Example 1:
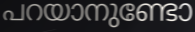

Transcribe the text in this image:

പറയാനുണ്ടോ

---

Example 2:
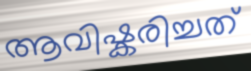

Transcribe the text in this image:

ആവിഷ്കരിച്ചത്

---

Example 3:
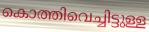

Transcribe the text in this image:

കൊത്തിവെച്ചിട്ടുള്ള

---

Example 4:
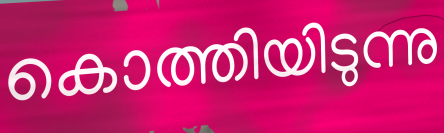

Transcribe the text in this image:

കൊത്തിയിടുന്നു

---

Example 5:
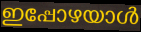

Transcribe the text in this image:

ഇപ്പോഴയാൾ